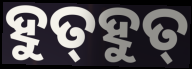
ହୁତ୍‌ହୁତ୍